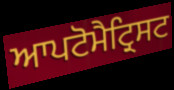
ਆਪਟੋਮੈਟ੍ਰਿਸਟ